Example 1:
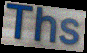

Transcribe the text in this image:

Ths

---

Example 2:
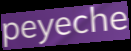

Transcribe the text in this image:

peyeche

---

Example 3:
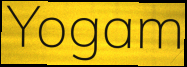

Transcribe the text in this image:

Yogam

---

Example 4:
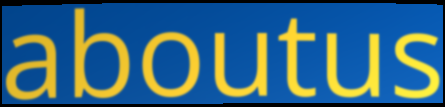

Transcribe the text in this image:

aboutus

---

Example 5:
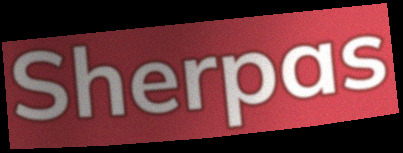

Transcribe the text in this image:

Sherpas